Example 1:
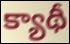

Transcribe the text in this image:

క్యాథీ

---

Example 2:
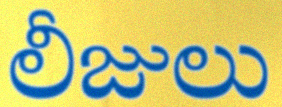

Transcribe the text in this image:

లీజులు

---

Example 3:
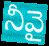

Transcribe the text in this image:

నీవై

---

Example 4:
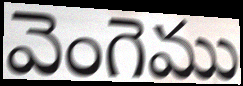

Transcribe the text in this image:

వెంగెము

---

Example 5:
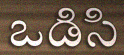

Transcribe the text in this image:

ఒడిసి